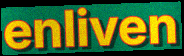
enliven